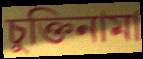
চুক্তিনামা